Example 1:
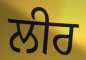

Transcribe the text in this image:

ਲੀਰ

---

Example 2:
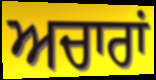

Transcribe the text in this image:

ਅਚਾਰਾਂ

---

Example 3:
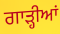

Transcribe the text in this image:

ਗਾੜ੍ਹੀਆਂ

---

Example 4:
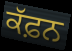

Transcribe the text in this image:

ਕੱਫ਼ਨ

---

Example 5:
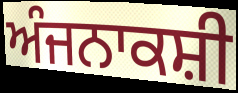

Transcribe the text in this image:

ਅੰਜਨਾਕਸ਼ੀ